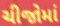
ચીજોમાં